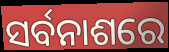
ସର୍ବନାଶରେ